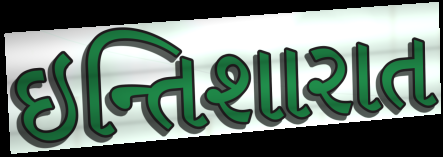
ઇન્તિશારાત